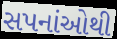
સપનાંઓથી